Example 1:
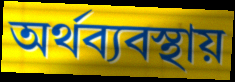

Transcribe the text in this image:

অর্থব্যবস্থায়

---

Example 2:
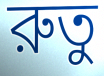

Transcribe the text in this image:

রুতু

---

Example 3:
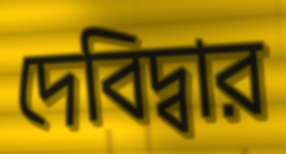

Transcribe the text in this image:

দেবিদ্বার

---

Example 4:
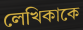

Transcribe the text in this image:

লেখিকাকে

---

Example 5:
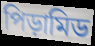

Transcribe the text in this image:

পিড়ামিড